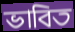
ভাবিত